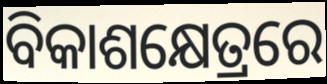
ବିକାଶକ୍ଷେତ୍ରରେ